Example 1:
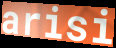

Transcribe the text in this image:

arisi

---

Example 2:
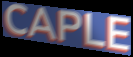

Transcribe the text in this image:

CAPLE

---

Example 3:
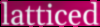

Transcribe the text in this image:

latticed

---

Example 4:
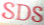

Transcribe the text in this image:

SDS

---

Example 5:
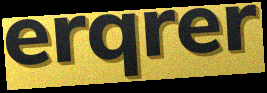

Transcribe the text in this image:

erqrer